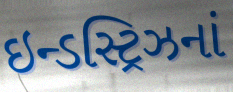
ઇન્ડસ્ટ્રિઝનાં